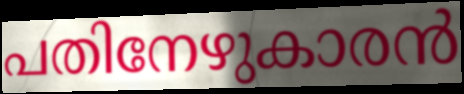
പതിനേഴുകാരൻ